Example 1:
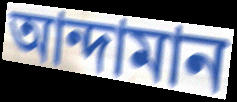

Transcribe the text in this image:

আন্দামান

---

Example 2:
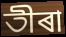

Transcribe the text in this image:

তীৰা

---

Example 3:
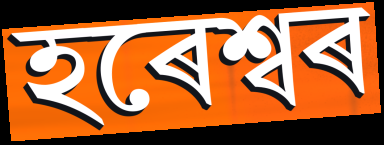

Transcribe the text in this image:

হৰেশ্বৰ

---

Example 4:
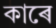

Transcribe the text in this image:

কাৰে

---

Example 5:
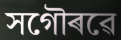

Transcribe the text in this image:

সগৌৰৱে